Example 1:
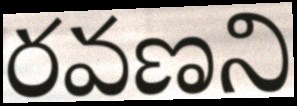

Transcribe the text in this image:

రవణని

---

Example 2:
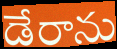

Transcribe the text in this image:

డేరాను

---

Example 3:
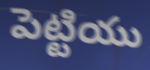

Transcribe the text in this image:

పెట్టియు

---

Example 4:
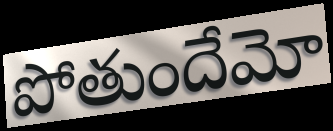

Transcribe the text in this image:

పోతుందేమో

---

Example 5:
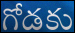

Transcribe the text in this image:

గోడకు